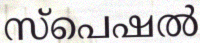
സ്പെഷൽ